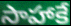
సాహాకే